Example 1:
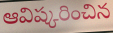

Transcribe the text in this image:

ఆవిష్కరించిన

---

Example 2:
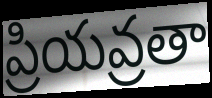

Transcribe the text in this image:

ప్రియవ్రతా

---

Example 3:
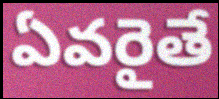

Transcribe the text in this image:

ఏవరైతే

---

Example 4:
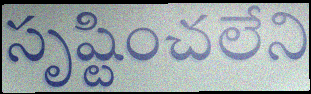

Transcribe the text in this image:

సృష్టించలేని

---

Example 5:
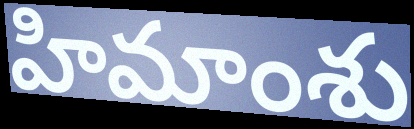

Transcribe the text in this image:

హిమాంశు